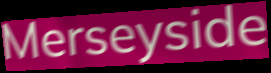
Merseyside